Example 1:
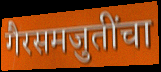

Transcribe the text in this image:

गैरसमजुतींचा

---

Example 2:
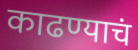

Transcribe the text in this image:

काढण्याचं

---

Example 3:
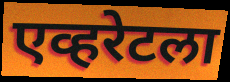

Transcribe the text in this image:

एव्हरेटला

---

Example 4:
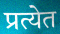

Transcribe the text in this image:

प्रत्येत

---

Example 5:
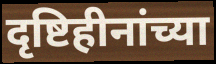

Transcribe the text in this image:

दृष्टिहीनांच्या